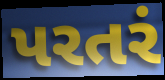
પરતરં